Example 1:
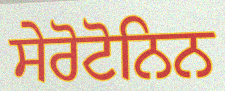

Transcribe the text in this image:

ਸੇਰੋਟੋਨਿਨ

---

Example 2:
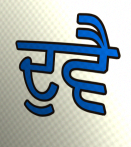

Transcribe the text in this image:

ਦੁਵੈ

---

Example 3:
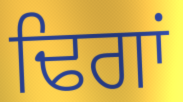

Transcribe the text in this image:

ਢਿਗਾਂ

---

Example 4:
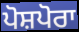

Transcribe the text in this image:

ਪੋਸ਼ਪੋਰਾ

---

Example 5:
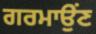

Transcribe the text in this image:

ਗਰਮਾਉਂਣ